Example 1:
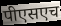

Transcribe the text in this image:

पीएसएच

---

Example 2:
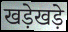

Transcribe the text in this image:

खड़ेखड़े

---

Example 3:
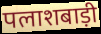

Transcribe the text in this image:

पलाशबाड़ी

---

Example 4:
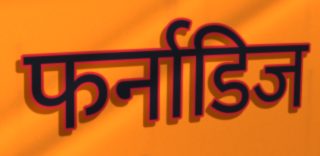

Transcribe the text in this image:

फर्नाडिज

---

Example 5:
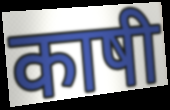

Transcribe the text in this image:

काषी